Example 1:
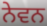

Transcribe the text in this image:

ਨੇਵਨ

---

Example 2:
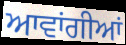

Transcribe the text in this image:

ਆਵਾਂਗੀਆਂ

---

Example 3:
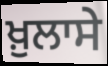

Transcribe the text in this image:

ਖ਼ੁਲਾਸੇ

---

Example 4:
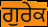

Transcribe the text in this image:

ਗੁਰੇਕ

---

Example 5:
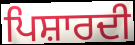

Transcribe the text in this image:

ਪਿਸ਼ਾਰਦੀ